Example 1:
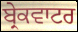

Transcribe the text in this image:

ਬ੍ਰੇਕਵਾਟਰ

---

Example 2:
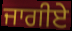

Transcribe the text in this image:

ਜਾਗੀਏ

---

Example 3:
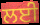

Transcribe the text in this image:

ਲਈ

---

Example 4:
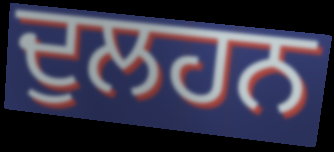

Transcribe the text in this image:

ਦੁਲਹਨ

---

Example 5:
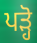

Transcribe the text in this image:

ਪੜ੍ਹੋ